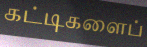
கட்டிகளைப்